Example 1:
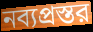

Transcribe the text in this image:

নব্যপ্রস্তর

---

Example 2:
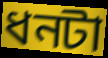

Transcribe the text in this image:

ধনটা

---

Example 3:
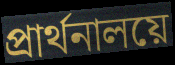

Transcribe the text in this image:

প্রার্থনালয়ে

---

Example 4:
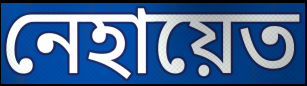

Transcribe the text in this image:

নেহায়েত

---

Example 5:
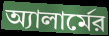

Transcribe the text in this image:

অ্যালার্মের